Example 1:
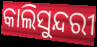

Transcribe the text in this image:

କାଲିସୁନ୍ଦରୀ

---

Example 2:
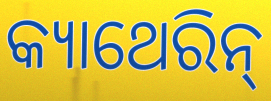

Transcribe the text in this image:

କ୍ୟାଥେରିନ୍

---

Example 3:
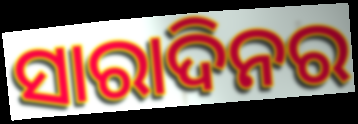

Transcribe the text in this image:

ସାରାଦିନର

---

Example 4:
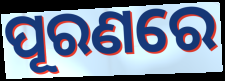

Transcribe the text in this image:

ପୂରଣରେ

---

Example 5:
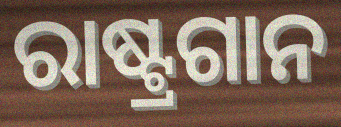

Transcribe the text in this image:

ରାଷ୍ଟ୍ରଗାନ